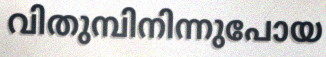
വിതുമ്പിനിന്നുപോയ